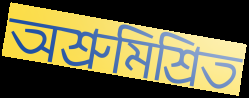
অশ্রুমিশ্রিত